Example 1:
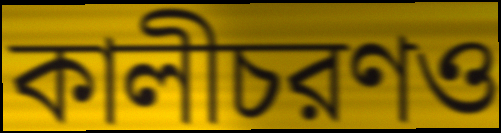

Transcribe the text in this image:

কালীচরণও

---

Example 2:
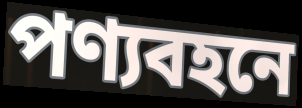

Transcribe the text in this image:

পণ্যবহনে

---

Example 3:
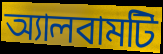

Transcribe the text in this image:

অ্যালবামটি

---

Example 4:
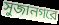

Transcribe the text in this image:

সুজানগরে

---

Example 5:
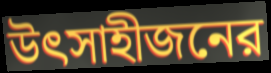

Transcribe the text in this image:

উৎসাহীজনের